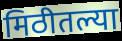
मिठीतल्या